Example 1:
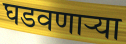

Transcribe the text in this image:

घडवणार्‍या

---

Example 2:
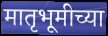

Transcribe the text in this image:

मातृभूमीच्या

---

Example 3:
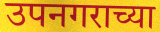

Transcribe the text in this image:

उपनगराच्या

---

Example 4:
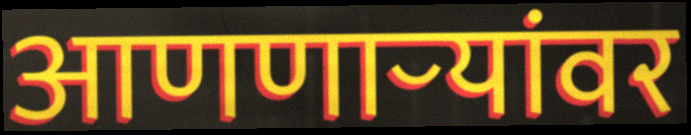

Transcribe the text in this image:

आणणाऱ्यांवर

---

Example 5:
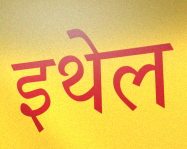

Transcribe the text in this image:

इथेल